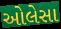
ઓલેસા